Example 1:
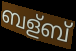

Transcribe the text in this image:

ബള്ബ്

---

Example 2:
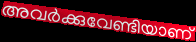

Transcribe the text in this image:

അവർക്കുവേണ്ടിയാണ്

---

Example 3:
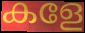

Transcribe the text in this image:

കളേ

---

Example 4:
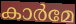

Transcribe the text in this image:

കാർമേ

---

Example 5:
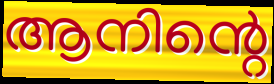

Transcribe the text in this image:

ആനിന്റെ